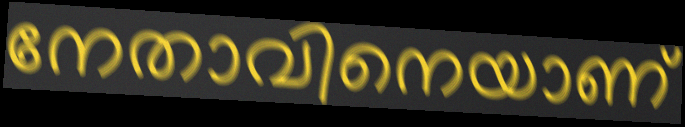
നേതാവിനെയാണ്